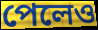
পেলেও